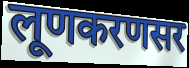
लूणकरणसर